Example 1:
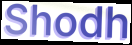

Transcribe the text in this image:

Shodh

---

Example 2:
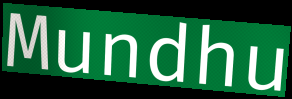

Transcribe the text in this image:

Mundhu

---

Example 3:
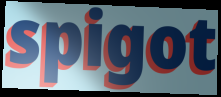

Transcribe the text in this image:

spigot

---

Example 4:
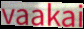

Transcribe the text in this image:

vaakai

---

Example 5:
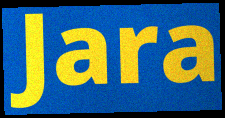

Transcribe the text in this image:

Jara